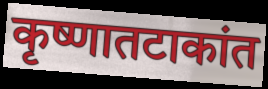
कृष्णातटाकांत